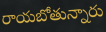
రాయబోతున్నారు